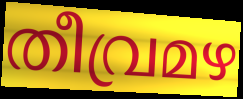
തീവ്രമഴ